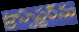
ట్రాన్సిస్టర్‌ను